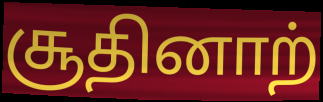
சூதினாற்